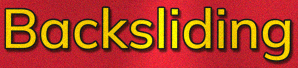
Backsliding